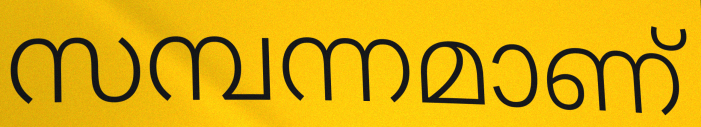
സമ്പന്നമാണ്